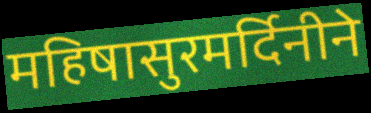
महिषासुरमर्दिनीने